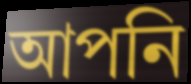
আপনি